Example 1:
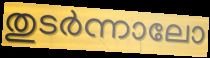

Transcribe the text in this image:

തുടർന്നാലോ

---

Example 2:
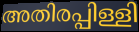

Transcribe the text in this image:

അതിരപ്പിള്ളി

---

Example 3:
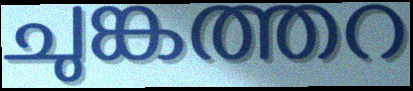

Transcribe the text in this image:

ചുങ്കത്തറ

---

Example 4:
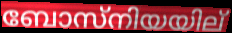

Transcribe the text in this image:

ബോസ്നിയയില്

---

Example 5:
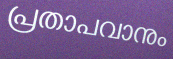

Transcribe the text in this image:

പ്രതാപവാനും